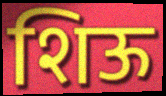
शिऊ